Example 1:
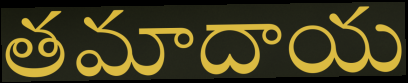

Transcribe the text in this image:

తమాదాయ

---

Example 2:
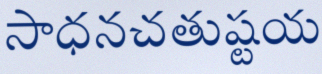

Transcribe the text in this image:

సాధనచతుష్టయ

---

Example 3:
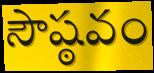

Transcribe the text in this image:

సౌష్ఠవం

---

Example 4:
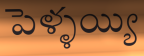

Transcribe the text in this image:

పెళ్ళయ్యి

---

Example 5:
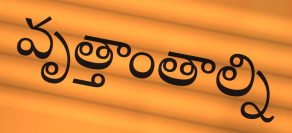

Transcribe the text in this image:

వృత్తాంతాల్ని